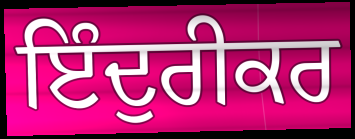
ਇੰਦੁਰੀਕਰ